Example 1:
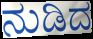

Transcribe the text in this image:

ನುಡಿದ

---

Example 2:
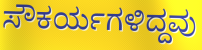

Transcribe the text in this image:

ಸೌಕರ್ಯಗಳಿದ್ದವು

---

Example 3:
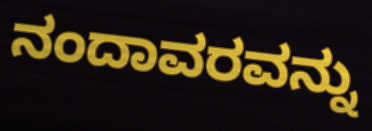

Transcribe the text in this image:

ನಂದಾವರವನ್ನು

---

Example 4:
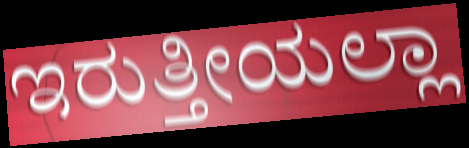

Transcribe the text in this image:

ಇರುತ್ತೀಯಲ್ಲಾ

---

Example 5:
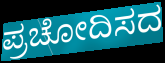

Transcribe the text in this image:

ಪ್ರಚೋದಿಸದ